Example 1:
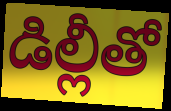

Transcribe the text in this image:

డిల్లీతో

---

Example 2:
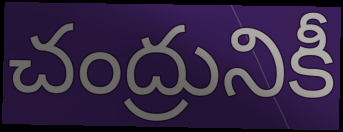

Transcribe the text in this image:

చంద్రునికీ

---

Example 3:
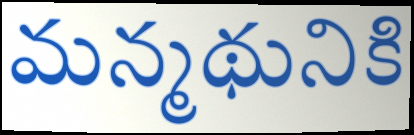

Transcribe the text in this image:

మన్మథునికి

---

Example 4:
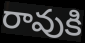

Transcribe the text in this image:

రావుకి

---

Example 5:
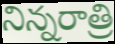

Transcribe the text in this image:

నిన్నరాత్రి